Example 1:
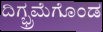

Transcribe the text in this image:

ದಿಗ್ಭ್ರಮೆಗೊಂಡ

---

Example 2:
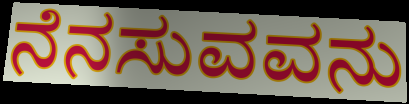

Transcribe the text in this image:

ನೆನಸುವವನು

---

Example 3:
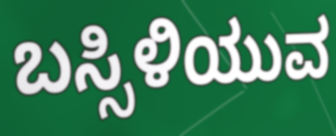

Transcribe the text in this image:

ಬಸ್ಸಿಳಿಯುವ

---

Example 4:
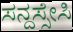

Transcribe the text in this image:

ಸನ್ದಸ್ಸೇಸಿ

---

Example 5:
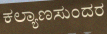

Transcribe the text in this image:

ಕಲ್ಯಾಣಸುಂದರ